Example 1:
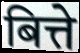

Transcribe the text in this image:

बित्ते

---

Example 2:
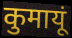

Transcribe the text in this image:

कुमायूं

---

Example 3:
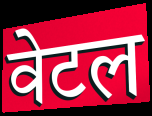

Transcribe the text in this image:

वेटल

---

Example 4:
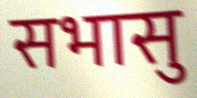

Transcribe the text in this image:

सभासु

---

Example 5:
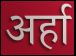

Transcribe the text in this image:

अर्हा